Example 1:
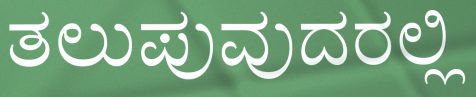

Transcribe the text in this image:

ತಲುಪುವುದರಲ್ಲಿ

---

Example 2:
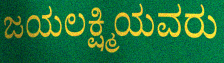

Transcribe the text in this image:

ಜಯಲಕ್ಷ್ಮಿಯವರು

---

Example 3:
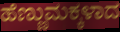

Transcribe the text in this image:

ಹೆಣ್ಣುಮಕ್ಕಳಾದ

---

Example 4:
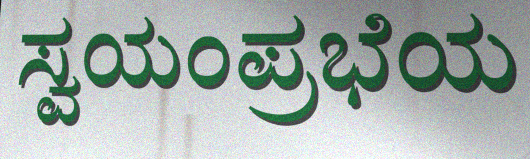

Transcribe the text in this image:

ಸ್ವಯಂಪ್ರಭೆಯ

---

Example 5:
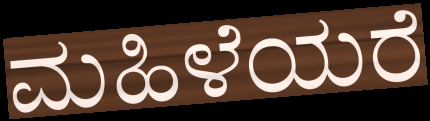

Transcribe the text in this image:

ಮಹಿಳೆಯರೆ